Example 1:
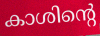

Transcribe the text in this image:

കാശിന്റെ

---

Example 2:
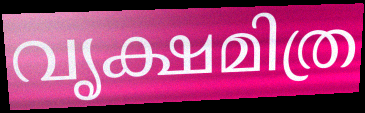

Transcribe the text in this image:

വൃക്ഷമിത്ര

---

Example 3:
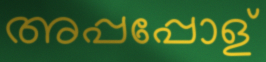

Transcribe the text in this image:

അപ്പപ്പോള്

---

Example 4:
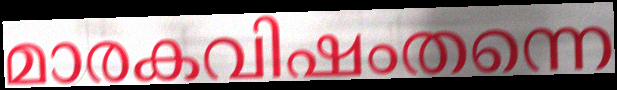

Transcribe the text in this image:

മാരകവിഷംതന്നെ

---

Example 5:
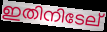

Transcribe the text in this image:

ഇതിനിടേല്